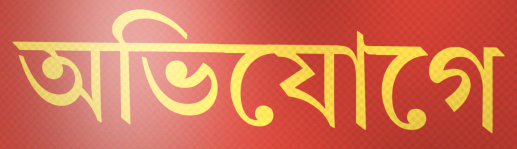
অভিযোগে